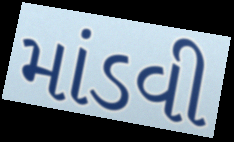
માંડવી